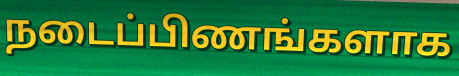
நடைப்பிணங்களாக